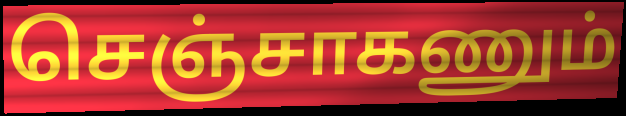
செஞ்சாகணும்